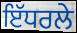
ਇੱਧਰਲੇ